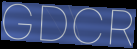
GDCR